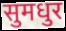
सुमधुर